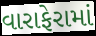
વારાફેરામાં